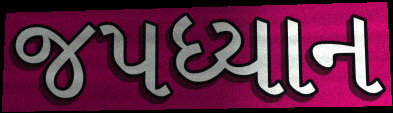
જપધ્યાન